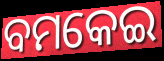
ବମକେଇ